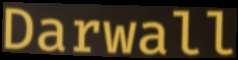
Darwall